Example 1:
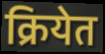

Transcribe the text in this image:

क्रियेत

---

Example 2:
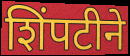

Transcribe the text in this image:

शिंपटीने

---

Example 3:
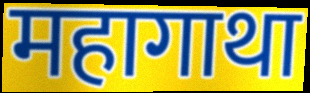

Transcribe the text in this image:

महागाथा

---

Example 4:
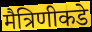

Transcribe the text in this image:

मैत्रिणीकडे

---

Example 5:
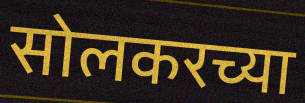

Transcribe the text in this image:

सोलकरच्या